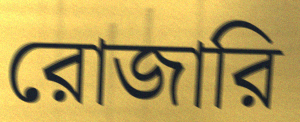
রোজারি